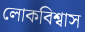
লোকবিশ্বাস